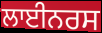
ਲਾਈਨਰਸ